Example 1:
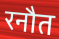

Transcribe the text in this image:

रनौत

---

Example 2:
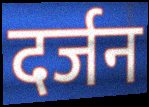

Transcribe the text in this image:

दर्जन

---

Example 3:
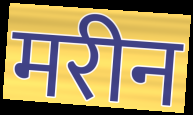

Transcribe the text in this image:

मरीन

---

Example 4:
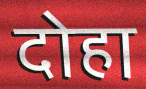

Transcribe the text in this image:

दोहा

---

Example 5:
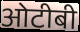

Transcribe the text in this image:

ओटीबी